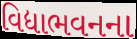
વિદ્યાભવનના